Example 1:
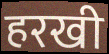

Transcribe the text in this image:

हरखी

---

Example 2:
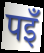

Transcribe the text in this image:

पइँ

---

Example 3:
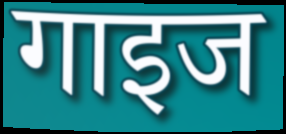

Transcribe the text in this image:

गाइज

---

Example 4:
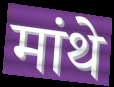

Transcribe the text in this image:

मांथे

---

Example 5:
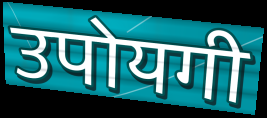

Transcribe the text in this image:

उपोयगी